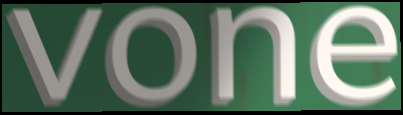
vone